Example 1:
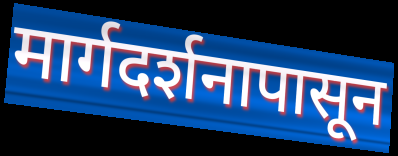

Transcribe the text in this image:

मार्गदर्शनापासून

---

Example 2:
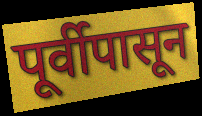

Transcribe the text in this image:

पूर्वीपासून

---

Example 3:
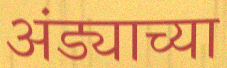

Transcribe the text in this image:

अंड्याच्या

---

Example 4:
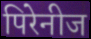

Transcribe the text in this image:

पिरेनीज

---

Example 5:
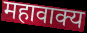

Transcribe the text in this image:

महावाक्य